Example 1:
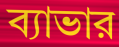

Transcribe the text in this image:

ব্যাভার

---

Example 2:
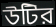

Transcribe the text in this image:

উটির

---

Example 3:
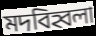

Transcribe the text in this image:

মদবিহ্বলা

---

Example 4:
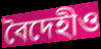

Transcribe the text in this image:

বৈদেহীও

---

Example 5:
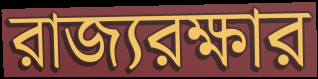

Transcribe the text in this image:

রাজ্যরক্ষার